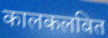
कालकलवित